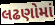
લઢણોમાં